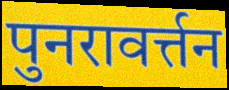
पुनरावर्त्तन